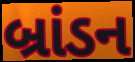
બ્રાંડન